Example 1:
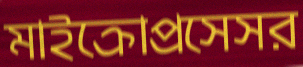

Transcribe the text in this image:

মাইক্রোপ্রসেসর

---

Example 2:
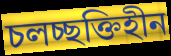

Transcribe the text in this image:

চলচ্ছক্তিহীন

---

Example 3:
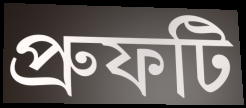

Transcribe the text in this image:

প্রুফটি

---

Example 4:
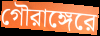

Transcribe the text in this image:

গৌরাঙ্গেরে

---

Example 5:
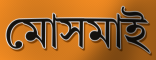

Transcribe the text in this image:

মোসমাই